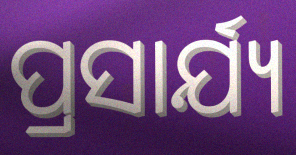
ପ୍ରସାର୍ଯ୍ୟ